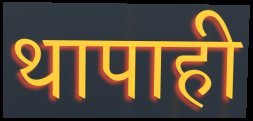
थापाही